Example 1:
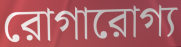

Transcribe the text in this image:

রোগারোগ্য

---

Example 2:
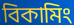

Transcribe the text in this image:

বিকামিং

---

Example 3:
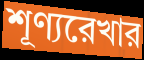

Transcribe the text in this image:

শূণ্যরেখার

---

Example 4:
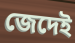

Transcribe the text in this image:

জেদেই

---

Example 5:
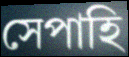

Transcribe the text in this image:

সেপাহি